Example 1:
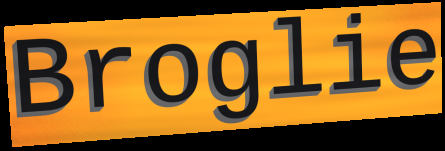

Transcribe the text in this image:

Broglie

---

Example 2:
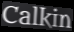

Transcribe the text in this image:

Calkin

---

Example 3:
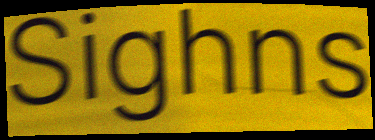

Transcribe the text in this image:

Sighns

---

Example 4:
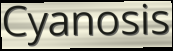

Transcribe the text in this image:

Cyanosis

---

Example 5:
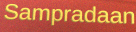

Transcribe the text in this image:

Sampradaan